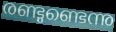
രണ്ടുണ്ടെന്നു